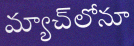
మ్యాచ్‌లోనూ